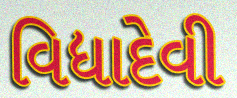
વિદ્યાદેવી